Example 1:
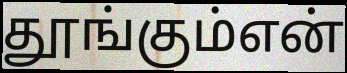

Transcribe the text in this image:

தூங்கும்என்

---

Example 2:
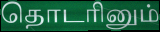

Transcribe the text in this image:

தொடரினும்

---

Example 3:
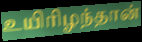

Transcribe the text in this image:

உயிரிழந்தான்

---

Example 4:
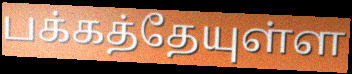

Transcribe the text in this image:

பக்கத்தேயுள்ள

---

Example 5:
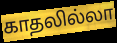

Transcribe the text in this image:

காதலில்லா